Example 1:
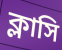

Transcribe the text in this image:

ক্লাসি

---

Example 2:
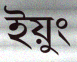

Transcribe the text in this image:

ইয়ুং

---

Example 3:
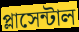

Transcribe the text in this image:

প্লাসেন্টাল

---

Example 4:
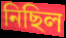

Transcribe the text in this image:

নিছিল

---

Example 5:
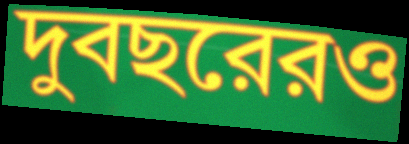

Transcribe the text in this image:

দুবছরেরও